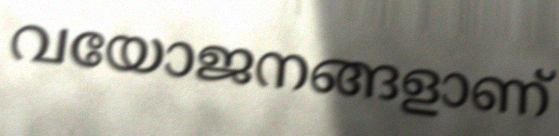
വയോജനങ്ങളാണ്